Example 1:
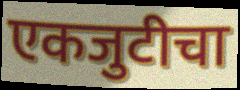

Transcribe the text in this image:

एकजुटीचा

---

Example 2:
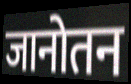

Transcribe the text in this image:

जानोतन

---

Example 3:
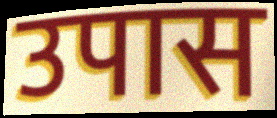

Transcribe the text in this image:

उपास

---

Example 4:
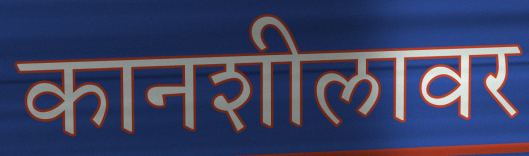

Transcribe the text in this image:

कानशीलावर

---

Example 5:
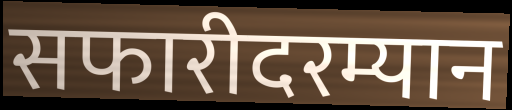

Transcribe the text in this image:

सफारीदरम्यान